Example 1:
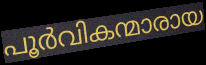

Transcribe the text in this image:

പൂർവികന്മാരായ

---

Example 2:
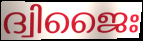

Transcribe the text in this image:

ദ്വിജൈഃ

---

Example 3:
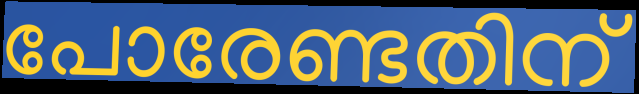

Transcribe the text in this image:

പോരേണ്ടതിന്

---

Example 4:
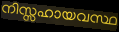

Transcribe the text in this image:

നിസ്സഹായവസ്ഥ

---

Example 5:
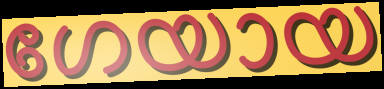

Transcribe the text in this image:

ഗേയായ